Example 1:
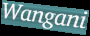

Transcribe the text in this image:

Wangani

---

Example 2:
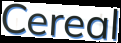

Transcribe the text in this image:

Cereal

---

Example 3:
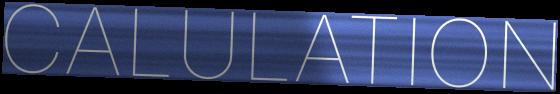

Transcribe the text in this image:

CALULATION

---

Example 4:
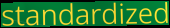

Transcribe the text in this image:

standardized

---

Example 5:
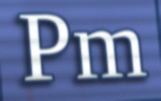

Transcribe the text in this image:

Pm